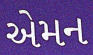
એમન